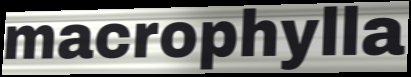
macrophylla